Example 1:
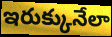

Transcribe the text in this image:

ఇరుక్కునేలా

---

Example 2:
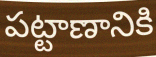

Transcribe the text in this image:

పట్టాణానికి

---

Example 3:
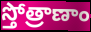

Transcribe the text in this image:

స్తోత్రాణాం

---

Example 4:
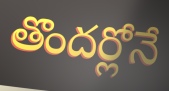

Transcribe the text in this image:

తొందర్లోనే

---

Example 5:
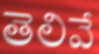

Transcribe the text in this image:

తెలివే